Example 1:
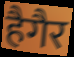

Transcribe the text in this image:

हैगैर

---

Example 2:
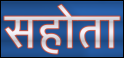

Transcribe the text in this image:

सहोता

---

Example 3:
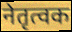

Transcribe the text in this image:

नेतृत्वक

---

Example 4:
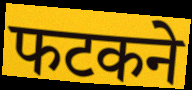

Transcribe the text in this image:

फटकने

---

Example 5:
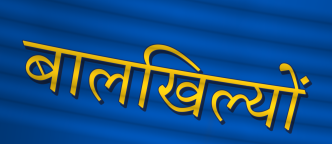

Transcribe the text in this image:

बालखिल्यों